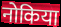
नोकिया